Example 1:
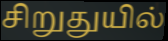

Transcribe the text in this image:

சிறுதுயில்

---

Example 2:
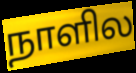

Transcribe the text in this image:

நாளில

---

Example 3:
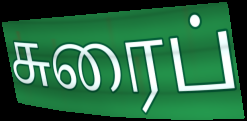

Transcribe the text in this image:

சுரைப்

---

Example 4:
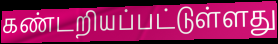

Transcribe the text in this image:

கண்டறியப்பட்டுள்ளது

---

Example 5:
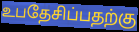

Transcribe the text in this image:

உபதேசிப்பதற்கு